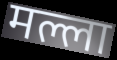
मल्ला